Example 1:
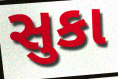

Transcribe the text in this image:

સુકા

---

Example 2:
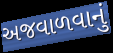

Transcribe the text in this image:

અજવાળવાનું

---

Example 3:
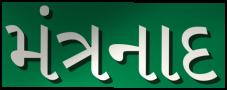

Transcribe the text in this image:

મંત્રનાદ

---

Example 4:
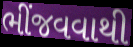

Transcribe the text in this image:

ભીંજવવાથી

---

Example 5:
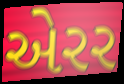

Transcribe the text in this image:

એરર